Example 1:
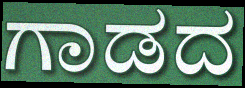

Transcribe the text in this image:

ಗಾಡದ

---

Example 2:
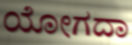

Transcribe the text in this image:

ಯೋಗದಾ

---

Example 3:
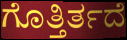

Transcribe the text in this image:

ಗೊತ್ತಿರ್ತದೆ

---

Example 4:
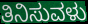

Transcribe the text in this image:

ತಿನಿಸುವಳು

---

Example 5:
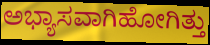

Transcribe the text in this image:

ಅಭ್ಯಾಸವಾಗಿಹೋಗಿತ್ತು